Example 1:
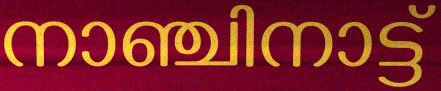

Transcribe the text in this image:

നാഞ്ചിനാട്ട്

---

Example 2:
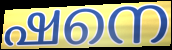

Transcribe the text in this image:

ഷനെ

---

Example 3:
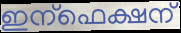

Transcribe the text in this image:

ഇന്ഫെക്ഷന്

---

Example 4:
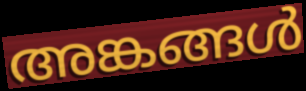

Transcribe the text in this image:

അങ്കങ്ങൾ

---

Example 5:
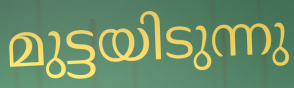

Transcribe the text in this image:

മുട്ടയിടുന്നു